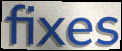
fixes